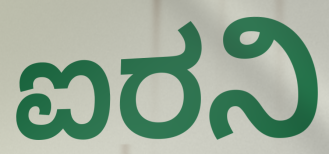
ಐರನಿ